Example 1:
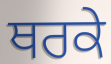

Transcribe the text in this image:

ਥਰਕੇ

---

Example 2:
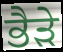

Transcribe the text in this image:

ਭੈਡ਼ੇ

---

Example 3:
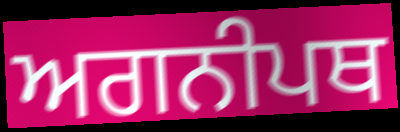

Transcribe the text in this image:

ਅਗਨੀਪਥ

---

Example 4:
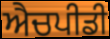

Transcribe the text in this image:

ਐਚਪੀਡੀ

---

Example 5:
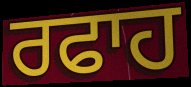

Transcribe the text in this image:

ਰਫਾਹ